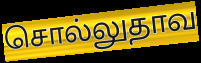
சொல்லுதாவ